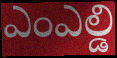
ఎంఎల్డి